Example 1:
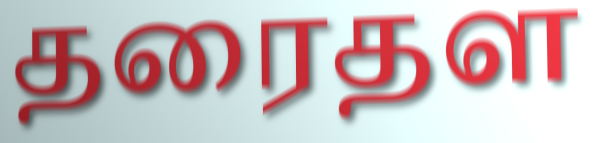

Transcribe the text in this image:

தரைதள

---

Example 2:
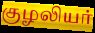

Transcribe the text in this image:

குழலியர்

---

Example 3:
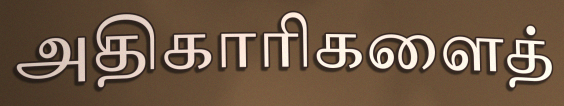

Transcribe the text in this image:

அதிகாரிகளைத்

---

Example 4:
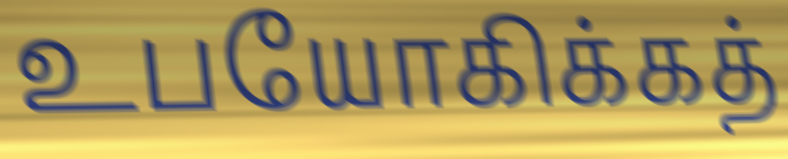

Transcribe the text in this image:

உபயோகிக்கத்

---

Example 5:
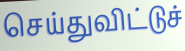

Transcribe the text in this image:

செய்துவிட்டுச்